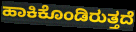
ಹಾಕಿಕೊಂಡಿರುತ್ತದೆ